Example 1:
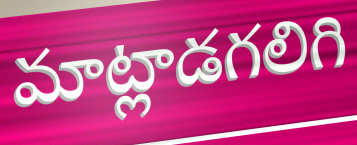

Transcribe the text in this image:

మాట్లాడగలిగి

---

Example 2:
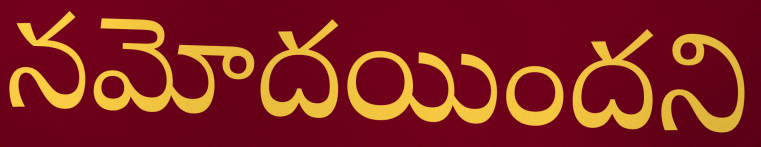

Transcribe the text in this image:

నమోదయిందని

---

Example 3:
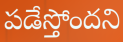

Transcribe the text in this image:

పడేస్తోందని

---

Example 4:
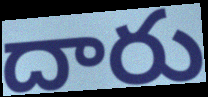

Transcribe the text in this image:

దారు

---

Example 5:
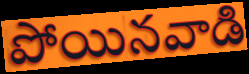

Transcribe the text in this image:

పోయినవాడి